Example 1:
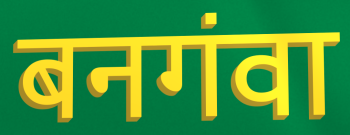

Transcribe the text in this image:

बनगंवा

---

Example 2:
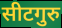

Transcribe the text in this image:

सीटगुरु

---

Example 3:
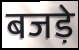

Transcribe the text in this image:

बजड़े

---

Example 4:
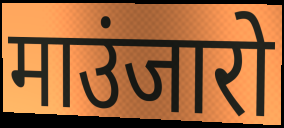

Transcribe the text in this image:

माउंजारो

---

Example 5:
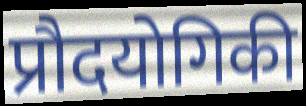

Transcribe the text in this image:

प्रौदयोगिकी